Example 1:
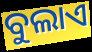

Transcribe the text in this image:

ବୁଲାଏ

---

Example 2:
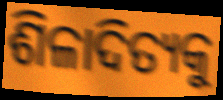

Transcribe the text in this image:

ଶିଳାଦିତ୍ୟକୁ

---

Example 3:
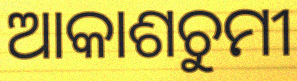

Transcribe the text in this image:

ଆକାଶଚୁମୀ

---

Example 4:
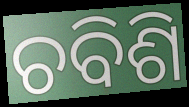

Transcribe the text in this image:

ଚବିଶି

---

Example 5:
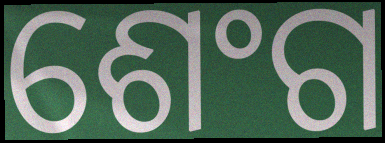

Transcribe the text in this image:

ଶେଂଗ